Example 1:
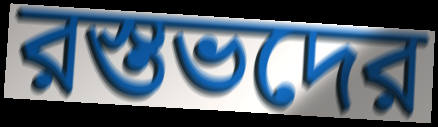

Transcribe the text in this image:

রস্তভদের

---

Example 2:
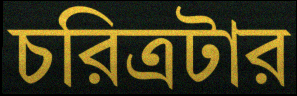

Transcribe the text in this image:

চরিত্রটার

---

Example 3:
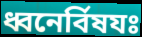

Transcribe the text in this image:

ধ্বনের্বিষযঃ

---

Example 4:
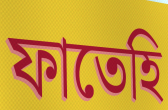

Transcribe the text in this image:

ফাতেহি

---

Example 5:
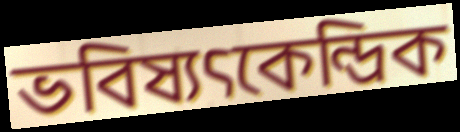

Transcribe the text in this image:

ভবিষ্যৎকেন্দ্রিক